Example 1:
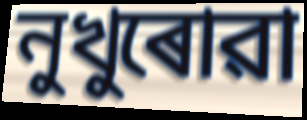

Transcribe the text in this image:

নুখুৰোৱা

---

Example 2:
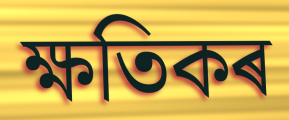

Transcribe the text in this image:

ক্ষতিকৰ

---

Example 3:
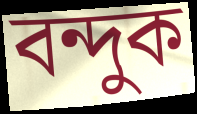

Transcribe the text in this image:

বন্দুক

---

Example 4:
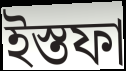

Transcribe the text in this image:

ইস্তফা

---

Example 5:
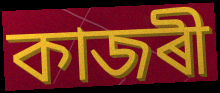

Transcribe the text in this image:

কাজৰী